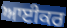
ਆਈਕਰ